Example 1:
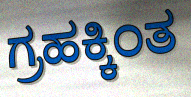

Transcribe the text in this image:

ಗ್ರಹಕ್ಕಿಂತ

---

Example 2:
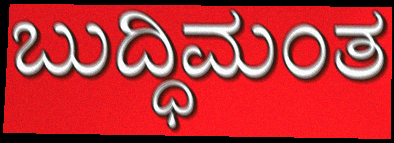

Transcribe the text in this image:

ಬುದ್ಧಿಮಂತ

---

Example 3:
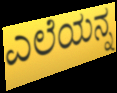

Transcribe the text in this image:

ಎಲೆಯನ್ನ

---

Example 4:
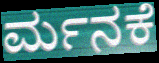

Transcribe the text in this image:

ರ್ಮನಕೆ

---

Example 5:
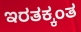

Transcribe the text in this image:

ಇರತಕ್ಕಂತ